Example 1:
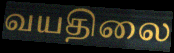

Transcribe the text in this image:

வயதிலை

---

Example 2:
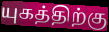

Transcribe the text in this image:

யுகத்திற்கு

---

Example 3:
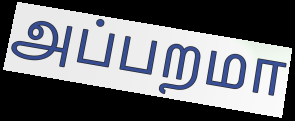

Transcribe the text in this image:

அப்பறமா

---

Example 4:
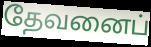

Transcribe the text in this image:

தேவனைப்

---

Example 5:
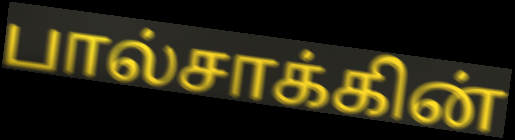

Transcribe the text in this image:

பால்சாக்கின்